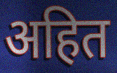
अहित